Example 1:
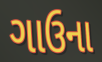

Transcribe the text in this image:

ગાઉના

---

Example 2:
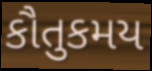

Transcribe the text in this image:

કૌતુકમય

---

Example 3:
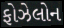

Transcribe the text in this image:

ફોઝેલોન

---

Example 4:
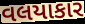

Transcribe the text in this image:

વલયાકાર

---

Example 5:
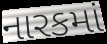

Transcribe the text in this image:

નારકમાં